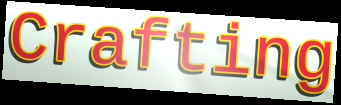
Crafting